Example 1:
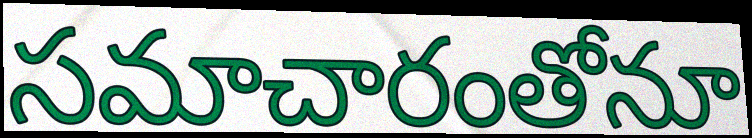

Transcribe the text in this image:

సమాచారంతోనూ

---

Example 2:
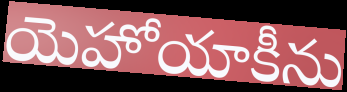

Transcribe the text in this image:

యెహోయాకీను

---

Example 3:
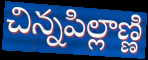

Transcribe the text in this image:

చిన్నపిల్లాణ్ణి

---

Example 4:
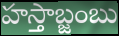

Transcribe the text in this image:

హస్తాబ్జంబు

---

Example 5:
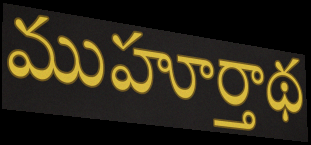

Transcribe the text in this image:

ముహూర్తాథ